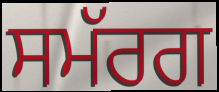
ਸਮੱਰਗ